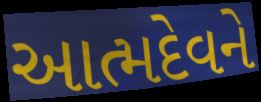
આત્મદેવને